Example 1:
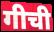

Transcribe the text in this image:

गीची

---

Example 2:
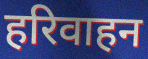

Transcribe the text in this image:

हरिवाहन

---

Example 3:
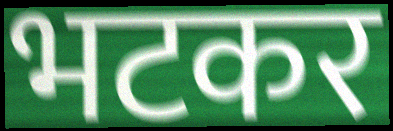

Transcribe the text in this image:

भटकर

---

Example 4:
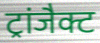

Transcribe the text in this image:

ट्रांजैक्ट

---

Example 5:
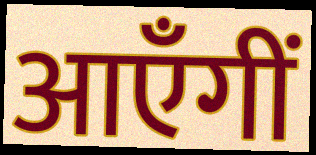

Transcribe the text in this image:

आएँगीं